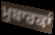
ਮੁਬਾਰਕਾਂ